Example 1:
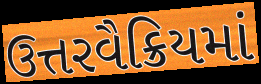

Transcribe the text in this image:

ઉત્તરવૈક્રિયમાં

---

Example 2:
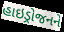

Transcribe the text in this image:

હાઇડ્રોજનને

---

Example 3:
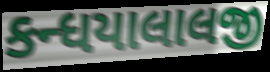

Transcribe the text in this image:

કન્ધયાલાલજી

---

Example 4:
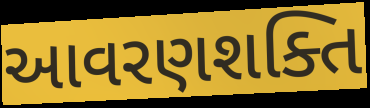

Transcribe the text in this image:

આવરણશક્તિ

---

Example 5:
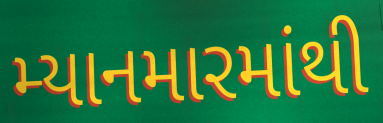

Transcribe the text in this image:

મ્યાનમારમાંથી